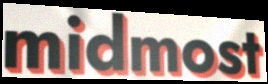
midmost